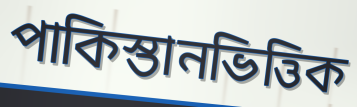
পাকিস্তানভিত্তিক